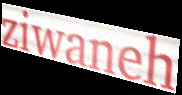
ziwaneh